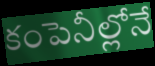
కంపెనీల్లోనే